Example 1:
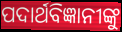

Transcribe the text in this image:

ପଦାର୍ଥବିଜ୍ଞାନୀଙ୍କୁ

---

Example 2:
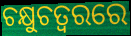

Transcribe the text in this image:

ଚକ୍ଷୁଚତ୍ୱରରେ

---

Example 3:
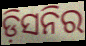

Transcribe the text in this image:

ଡ଼ିସନିର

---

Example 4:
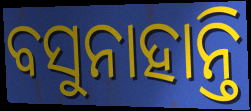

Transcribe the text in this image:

ବସୁନାହାନ୍ତି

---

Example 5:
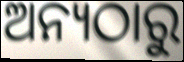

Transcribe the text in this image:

ଅନ୍ୟଠାରୁ